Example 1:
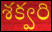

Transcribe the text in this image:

శక్వరి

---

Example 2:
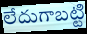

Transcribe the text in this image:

లేదుగాబట్టి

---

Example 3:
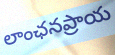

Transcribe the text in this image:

లాంఛనప్రాయ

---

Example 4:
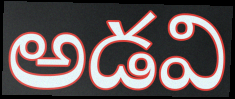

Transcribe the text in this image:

అడవి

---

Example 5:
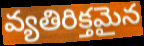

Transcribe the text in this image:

వ్యతిరిక్తమైన